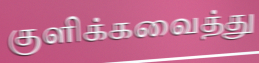
குளிக்கவைத்து